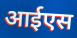
आईएस